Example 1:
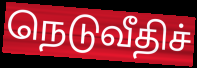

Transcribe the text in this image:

நெடுவீதிச்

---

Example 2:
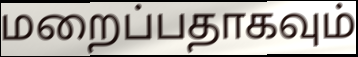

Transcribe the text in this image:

மறைப்பதாகவும்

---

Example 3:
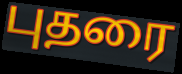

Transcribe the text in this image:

புதரை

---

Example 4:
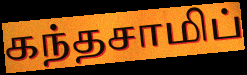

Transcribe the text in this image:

கந்தசாமிப்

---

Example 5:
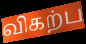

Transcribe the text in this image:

விகற்ப